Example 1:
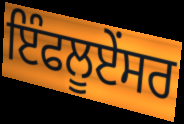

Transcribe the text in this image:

ਇੰਫਲੂਏਂਸਰ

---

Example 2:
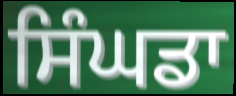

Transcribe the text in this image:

ਸਿੰਘਡਾ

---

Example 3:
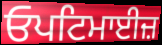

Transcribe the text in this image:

ਓਪਟਿਮਾਈਜ਼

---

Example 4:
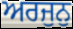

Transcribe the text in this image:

ਅਰਜੁਨੁ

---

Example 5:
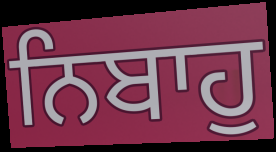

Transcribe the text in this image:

ਨਿਬਾਹੁ